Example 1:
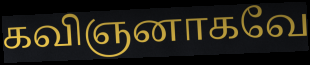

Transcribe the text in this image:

கவிஞனாகவே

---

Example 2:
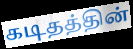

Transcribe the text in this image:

கடிதத்தின்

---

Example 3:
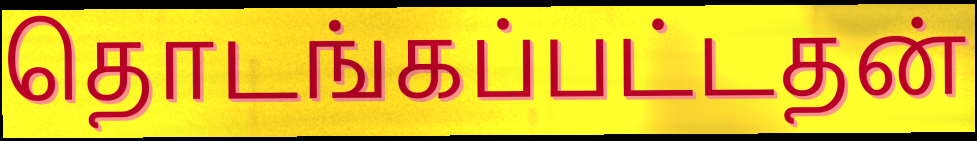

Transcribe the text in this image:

தொடங்கப்பட்டதன்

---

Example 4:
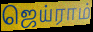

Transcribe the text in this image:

ஜெய்ராம்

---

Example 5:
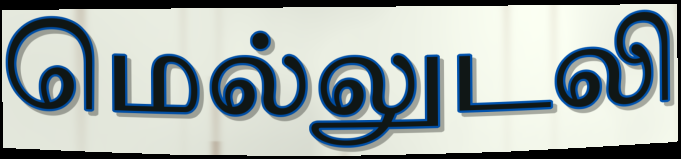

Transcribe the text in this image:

மெல்லுடலி